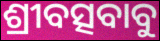
ଶ୍ରୀବତ୍ସବାବୁ